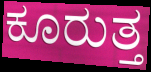
ಕೂರುತ್ತ